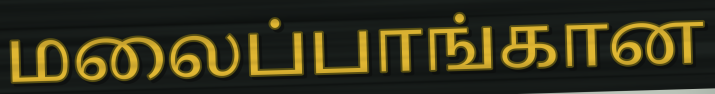
மலைப்பாங்கான